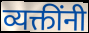
व्यक्तींनी